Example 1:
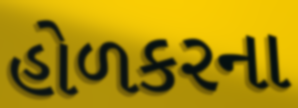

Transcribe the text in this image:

હોળકરના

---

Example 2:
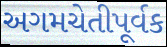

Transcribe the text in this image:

અગમચેતીપૂર્વક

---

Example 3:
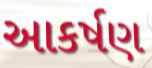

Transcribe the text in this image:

આકર્ષણ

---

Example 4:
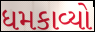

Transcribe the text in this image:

ધમકાવ્યો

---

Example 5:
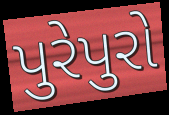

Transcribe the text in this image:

પુરેપુરો